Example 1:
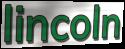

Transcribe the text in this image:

lincoln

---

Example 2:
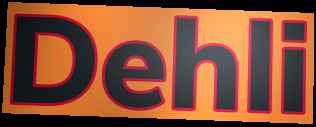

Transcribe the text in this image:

Dehli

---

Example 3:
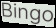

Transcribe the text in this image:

Bingo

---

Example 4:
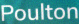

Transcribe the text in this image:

Poulton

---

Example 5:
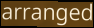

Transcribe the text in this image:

arranged